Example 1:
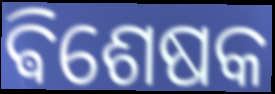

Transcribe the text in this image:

ଵିଶେଷକ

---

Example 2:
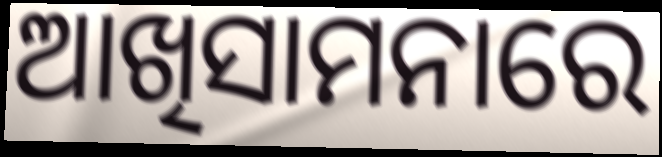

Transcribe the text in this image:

ଆଖିସାମନାରେ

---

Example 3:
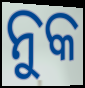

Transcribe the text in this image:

ନୁକ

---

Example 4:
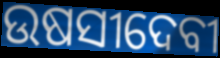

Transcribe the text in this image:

ଉଷସୀଦେବୀ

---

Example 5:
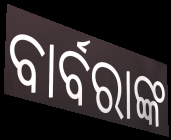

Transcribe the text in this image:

ବାର୍ବରାଙ୍କ